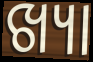
ଖ୍ୟା